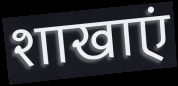
शाखाएं